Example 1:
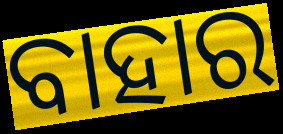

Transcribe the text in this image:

ବାହାର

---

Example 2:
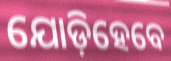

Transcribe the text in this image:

ଯୋଡ଼ିହେବେ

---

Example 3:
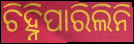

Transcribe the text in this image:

ଚିହ୍ନିପାରିଲିନି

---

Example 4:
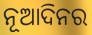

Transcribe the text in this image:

ନୂଆଦିନର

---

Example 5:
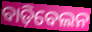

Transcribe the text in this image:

ବାଡ଼ିବେଲନ